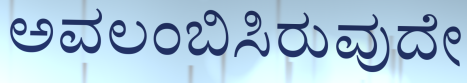
ಅವಲಂಬಿಸಿರುವುದೇ